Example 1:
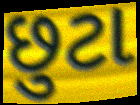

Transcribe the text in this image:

છુટા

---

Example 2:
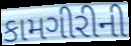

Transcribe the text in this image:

કામગીરીની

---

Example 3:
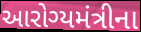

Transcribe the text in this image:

આરોગ્યમંત્રીના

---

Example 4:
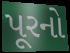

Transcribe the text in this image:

પૂરનો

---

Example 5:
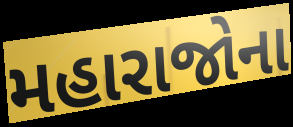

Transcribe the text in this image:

મહારાજોના